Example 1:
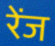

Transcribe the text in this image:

रेंज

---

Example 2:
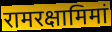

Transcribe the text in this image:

रामरक्षामिमां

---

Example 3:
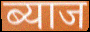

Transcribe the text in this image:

ब्याज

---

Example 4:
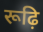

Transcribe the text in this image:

रूढ़ि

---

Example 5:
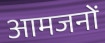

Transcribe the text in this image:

आमजनों